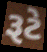
રૂટે